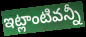
ఇట్లాంటివన్నీ